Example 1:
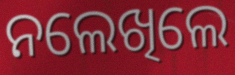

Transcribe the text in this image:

ନଲେଖିଲେ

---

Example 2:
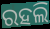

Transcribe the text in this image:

ରହଲି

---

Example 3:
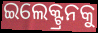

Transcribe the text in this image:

ଇଲେକ୍ଟ୍ରନକୁ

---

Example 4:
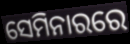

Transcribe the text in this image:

ସେମିନାରରେ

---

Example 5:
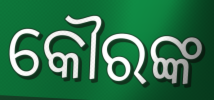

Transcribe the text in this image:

କୌରଙ୍କ